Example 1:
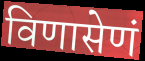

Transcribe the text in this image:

विणासेणं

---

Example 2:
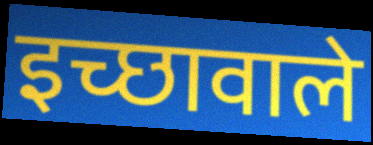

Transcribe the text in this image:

इच्छावाले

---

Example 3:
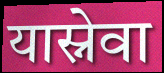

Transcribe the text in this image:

यास्नेवा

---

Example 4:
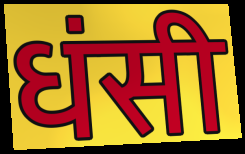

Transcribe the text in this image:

धंसी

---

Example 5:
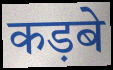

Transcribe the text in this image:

कड़बे